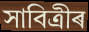
সাবিত্ৰীৰ